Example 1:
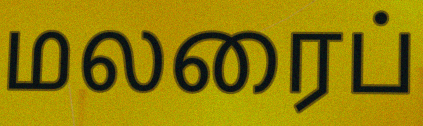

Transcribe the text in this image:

மலரைப்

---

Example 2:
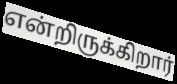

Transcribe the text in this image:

என்றிருக்கிறார்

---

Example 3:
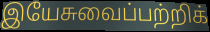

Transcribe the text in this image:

இயேசுவைப்பற்றிக்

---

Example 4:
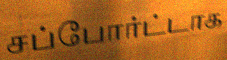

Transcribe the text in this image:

சப்போர்ட்டாக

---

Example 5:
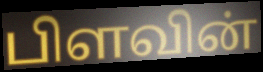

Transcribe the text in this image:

பிளவின்